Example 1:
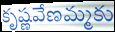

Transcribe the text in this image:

కృష్ణవేణమ్మకు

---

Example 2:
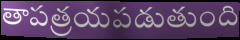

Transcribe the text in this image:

తాపత్రయపడుతుంది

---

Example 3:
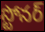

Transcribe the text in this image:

స్టోనర్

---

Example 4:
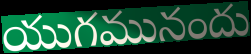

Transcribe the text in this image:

యుగమునందు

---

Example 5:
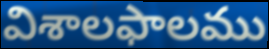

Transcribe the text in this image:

విశాలఫాలము